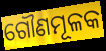
ଗୌଣମୂଳକ